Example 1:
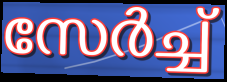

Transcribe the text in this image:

സേർച്ച്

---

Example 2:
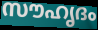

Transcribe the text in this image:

സൗഹൃദം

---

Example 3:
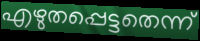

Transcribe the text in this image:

എഴുതപ്പെട്ടതെന്ന്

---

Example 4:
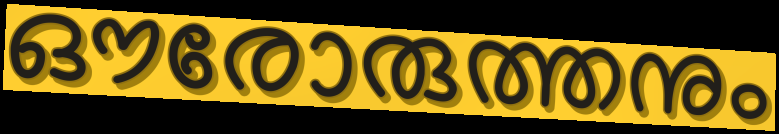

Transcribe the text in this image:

ഔരോരുത്തനും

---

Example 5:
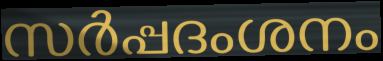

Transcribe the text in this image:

സർപ്പദംശനം